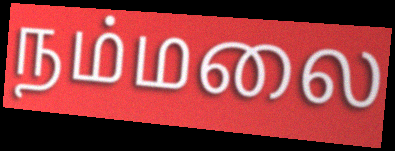
நம்மலை